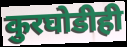
कुरघोडीही